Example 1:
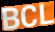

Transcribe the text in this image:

BCL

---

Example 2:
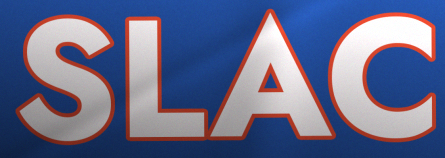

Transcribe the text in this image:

SLAC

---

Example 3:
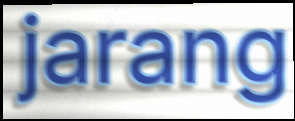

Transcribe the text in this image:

jarang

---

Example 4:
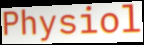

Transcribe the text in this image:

Physiol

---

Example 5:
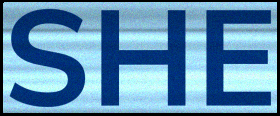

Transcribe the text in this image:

SHE